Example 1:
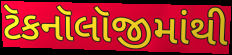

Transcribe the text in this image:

ટૅકનૉલૉજીમાંથી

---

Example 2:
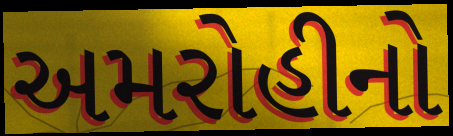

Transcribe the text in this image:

અમરોહીનો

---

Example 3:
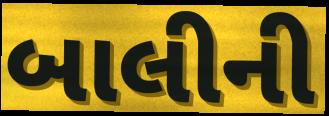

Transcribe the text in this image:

બાલીની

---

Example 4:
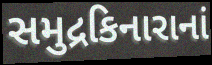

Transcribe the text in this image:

સમુદ્રકિનારાનાં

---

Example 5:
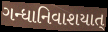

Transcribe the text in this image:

ગન્ધાનિવાશયાત્